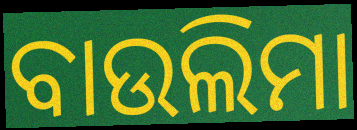
ବାଉଲିମା